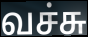
வச்சு